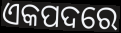
ଏକପଦରେ